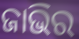
ଜାଭିର